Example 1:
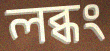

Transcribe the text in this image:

লব্ধং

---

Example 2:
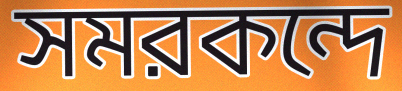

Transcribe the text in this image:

সমরকন্দে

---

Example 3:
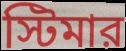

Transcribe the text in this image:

স্টিমার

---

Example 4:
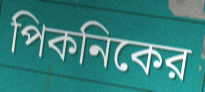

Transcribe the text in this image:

পিকনিকের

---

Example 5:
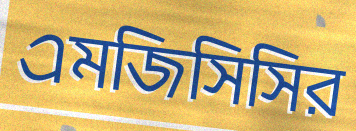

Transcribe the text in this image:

এমজিসিসির